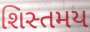
શિસ્તમય